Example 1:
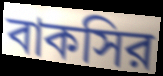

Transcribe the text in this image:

বাকসির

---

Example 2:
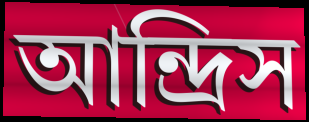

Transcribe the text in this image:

আন্দ্রিস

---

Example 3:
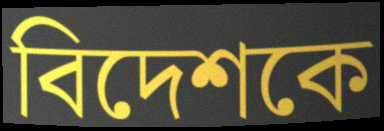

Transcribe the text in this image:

বিদেশকে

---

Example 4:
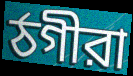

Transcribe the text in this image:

ঠগীরা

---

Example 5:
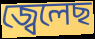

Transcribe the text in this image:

জ্বেলেছ